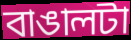
বাঙালটা